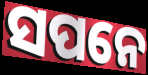
ସପନେ